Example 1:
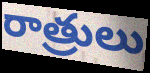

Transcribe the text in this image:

రాత్రులు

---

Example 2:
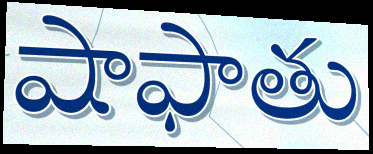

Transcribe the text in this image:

షాఫాతు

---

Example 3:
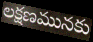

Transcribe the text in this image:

లక్షణమునకు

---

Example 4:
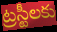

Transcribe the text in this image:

ట్రస్టీలకు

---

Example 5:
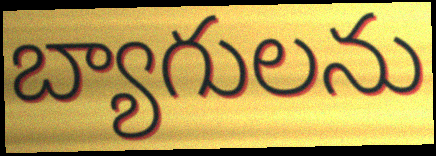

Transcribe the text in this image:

బ్యాగులను